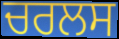
ਚਰਲਸ